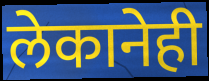
लेकानेही